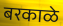
बरकाळे